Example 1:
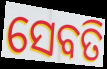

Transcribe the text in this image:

ସେବତି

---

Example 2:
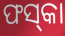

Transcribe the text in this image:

ଫସ୍‌କା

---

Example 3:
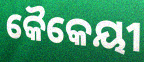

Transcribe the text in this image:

କୈକେୟୀ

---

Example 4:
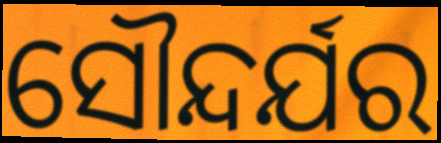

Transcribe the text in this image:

ସୌନ୍ଦର୍ଯର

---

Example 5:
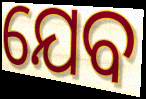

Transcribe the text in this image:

ଯେବ